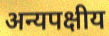
अन्यपक्षीय